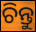
ଚିନ୍ତୁ